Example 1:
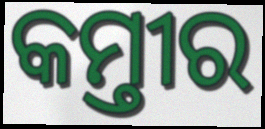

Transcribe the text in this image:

କମ୍ତୀର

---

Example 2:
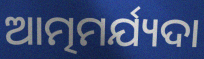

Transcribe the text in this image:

ଆତ୍ମମର୍ଯ୍ୟଦା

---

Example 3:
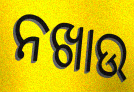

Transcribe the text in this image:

ନଖାଉ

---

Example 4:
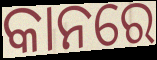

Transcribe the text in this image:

କାନରେ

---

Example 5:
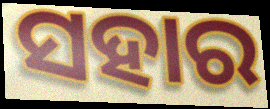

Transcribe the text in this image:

ସହାର